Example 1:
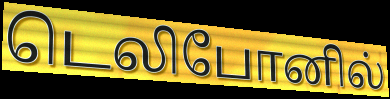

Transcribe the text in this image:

டெலிபோனில்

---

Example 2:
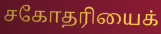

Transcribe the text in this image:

சகோதரியைக்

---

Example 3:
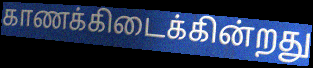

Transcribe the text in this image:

காணக்கிடைக்கின்றது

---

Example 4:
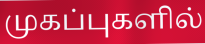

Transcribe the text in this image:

முகப்புகளில்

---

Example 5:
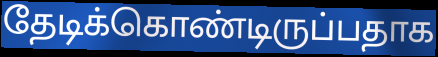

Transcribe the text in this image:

தேடிக்கொண்டிருப்பதாக